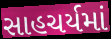
સાહચર્યમાં